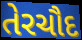
તેરચૌદ